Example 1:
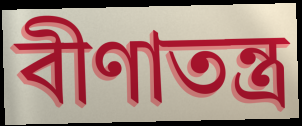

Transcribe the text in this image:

বীণাতন্ত্র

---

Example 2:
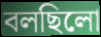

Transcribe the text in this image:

বলছিলো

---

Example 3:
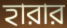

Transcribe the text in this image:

হারার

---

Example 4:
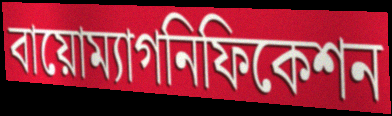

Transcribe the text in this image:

বায়োম্যাগনিফিকেশন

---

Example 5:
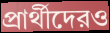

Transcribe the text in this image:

প্রার্থীদেরও